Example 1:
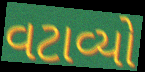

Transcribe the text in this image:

વટાવ્યો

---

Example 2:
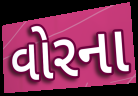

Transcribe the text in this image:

વોરના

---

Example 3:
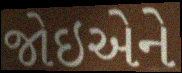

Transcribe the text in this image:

જોઇએને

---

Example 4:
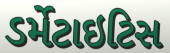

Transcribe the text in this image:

ડર્મેટાઇટિસ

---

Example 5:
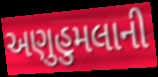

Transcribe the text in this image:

અણુહુમલાની